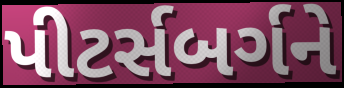
પીટર્સબર્ગને